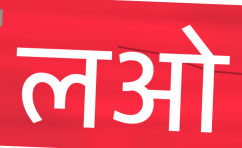
लओ